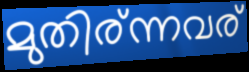
മുതിര്ന്നവര്